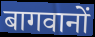
बागवानों